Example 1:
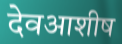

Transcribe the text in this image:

देवआशीष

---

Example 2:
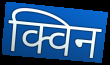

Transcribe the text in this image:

क्विन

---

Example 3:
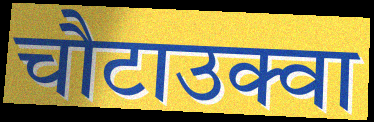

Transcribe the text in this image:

चौटाउक्वा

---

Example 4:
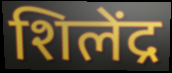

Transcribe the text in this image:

शिलेंद्र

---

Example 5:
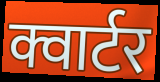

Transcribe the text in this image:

क्‍वार्टर